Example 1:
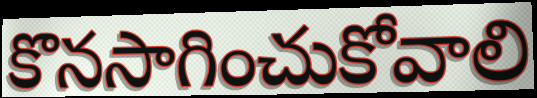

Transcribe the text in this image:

కొనసాగించుకోవాలి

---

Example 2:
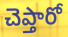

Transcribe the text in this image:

చెప్తారో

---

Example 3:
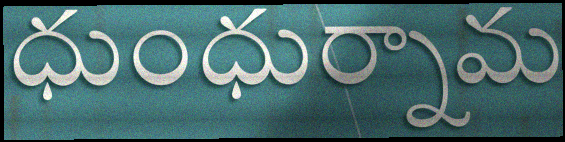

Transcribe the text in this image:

ధుంధుర్నామ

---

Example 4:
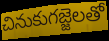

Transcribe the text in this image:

చినుకుగజ్జెలతో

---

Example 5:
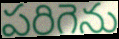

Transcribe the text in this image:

పరిగెను